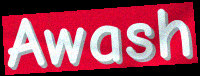
Awash